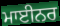
ਮਾਈਨਰ